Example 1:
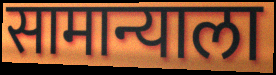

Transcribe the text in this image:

सामान्याला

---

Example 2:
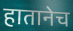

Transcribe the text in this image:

हातानेच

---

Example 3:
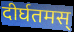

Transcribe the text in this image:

दीर्घतमस्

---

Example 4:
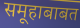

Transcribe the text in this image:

समूहाबाबत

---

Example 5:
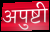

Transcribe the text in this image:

अपुष्टी